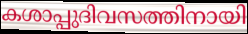
കശാപ്പുദിവസത്തിനായി